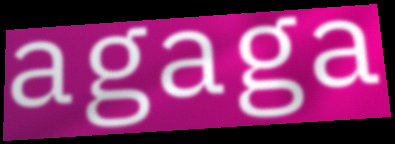
agaga